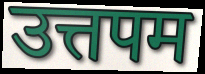
उत्तपम